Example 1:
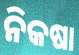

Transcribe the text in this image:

ନିକଷା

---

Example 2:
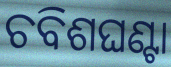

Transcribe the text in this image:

ଚବିଶଘଣ୍ଟା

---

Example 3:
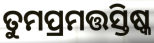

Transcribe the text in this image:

ତୁମପ୍ରମତ୍ତସ୍ତିଷ୍କ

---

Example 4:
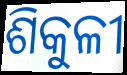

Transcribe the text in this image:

ଶିକୁଳୀ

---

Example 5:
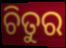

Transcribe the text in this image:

ଚିତୁର